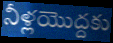
నీళ్లయొద్దకు